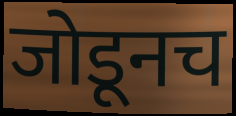
जोडूनच